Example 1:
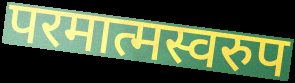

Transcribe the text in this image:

परमात्मस्वरुप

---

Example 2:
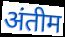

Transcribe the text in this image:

अंतीम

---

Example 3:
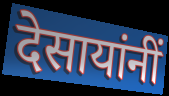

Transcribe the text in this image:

देसायांनीं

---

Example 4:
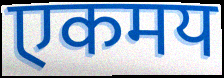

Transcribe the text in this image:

एकमय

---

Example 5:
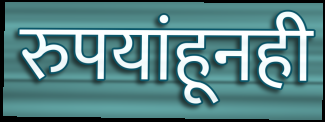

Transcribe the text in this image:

रुपयांहूनही